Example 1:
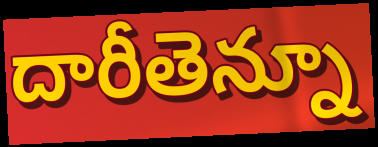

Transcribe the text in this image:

దారీతెన్నూ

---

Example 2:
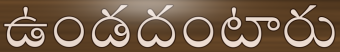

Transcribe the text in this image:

ఉండదంటారు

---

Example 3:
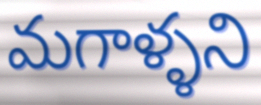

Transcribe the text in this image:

మగాళ్ళని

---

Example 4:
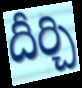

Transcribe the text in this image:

దీర్చి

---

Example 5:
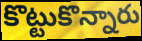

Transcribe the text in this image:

కొట్టుకొన్నారు